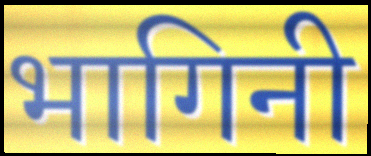
भागिनी